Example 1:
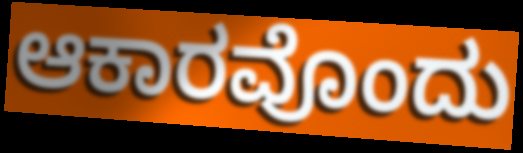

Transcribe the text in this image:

ಆಕಾರವೊಂದು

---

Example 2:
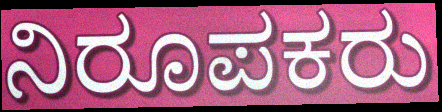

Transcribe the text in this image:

ನಿರೂಪಕರು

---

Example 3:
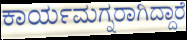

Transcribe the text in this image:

ಕಾರ್ಯಮಗ್ನರಾಗಿದ್ದಾರೆ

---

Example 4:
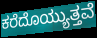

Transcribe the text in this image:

ಕರೆದೊಯ್ಯುತ್ತವೆ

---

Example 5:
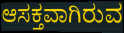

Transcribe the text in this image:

ಆಸಕ್ತವಾಗಿರುವ